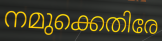
നമുക്കെതിരേ